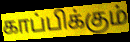
காப்பிக்கும்